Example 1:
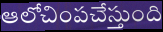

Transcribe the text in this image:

ఆలోచింపచేస్తుంది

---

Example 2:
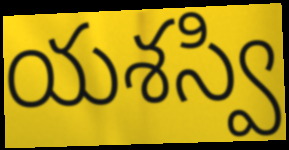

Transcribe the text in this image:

యశస్వి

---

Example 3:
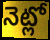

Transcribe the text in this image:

నెట్లో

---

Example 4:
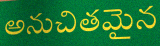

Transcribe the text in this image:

అనుచితమైన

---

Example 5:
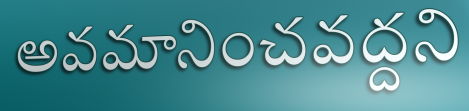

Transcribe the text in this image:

అవమానించవద్దని